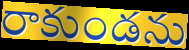
రాకుండను